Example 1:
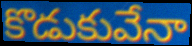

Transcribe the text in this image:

కొడుకువేనా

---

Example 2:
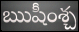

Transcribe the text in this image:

ఋషీంశ్చ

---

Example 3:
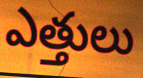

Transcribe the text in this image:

ఎత్తులు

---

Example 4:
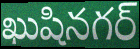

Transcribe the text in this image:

ఖుషినగర్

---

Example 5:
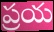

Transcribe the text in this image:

ప్రయ